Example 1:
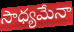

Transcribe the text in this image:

సాధ్యమేనా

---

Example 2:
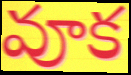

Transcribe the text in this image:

వూక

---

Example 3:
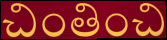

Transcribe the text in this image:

చింతించి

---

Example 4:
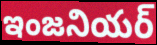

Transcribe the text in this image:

ఇంజనియర్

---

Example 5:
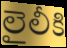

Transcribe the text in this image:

లైలీకి